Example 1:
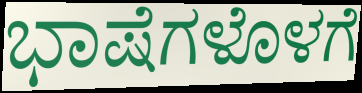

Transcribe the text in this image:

ಭಾಷೆಗಳೊಳಗೆ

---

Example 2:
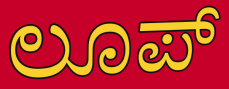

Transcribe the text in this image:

ಲೂಪ್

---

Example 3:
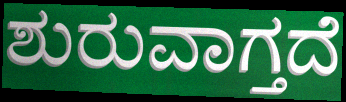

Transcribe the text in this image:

ಶುರುವಾಗ್ತದೆ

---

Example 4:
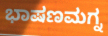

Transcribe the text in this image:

ಭಾಷಣಮಗ್ನ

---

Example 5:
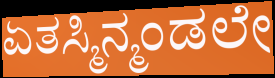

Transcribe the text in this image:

ಏತಸ್ಮಿನ್ಮಂಡಲೇ